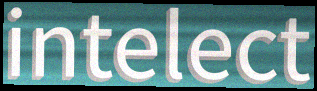
intelect